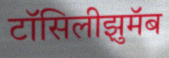
टॉसिलीझुमॅब